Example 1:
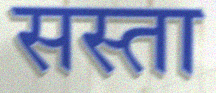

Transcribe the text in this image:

सस्ता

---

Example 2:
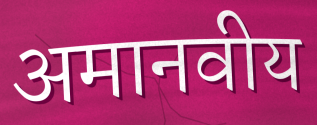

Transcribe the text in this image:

अमानवीय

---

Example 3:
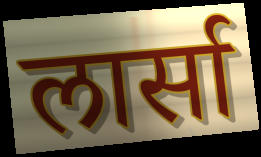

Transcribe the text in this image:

लार्सा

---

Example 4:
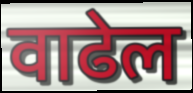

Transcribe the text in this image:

वाढेल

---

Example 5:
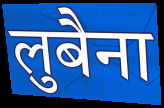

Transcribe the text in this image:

लुबैना